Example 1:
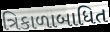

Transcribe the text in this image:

ત્રિકાળાબાધિત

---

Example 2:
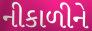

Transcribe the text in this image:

નીકાળીને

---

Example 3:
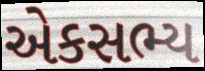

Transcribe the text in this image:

એકસભ્ય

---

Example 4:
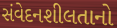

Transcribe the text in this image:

સંવેદનશીલતાનો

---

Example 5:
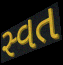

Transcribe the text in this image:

સ્વત